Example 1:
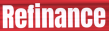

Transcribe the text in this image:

Refinance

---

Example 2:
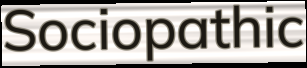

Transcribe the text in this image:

Sociopathic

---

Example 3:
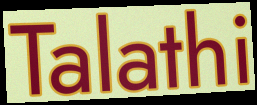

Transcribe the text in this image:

Talathi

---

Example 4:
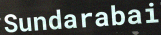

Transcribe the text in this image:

Sundarabai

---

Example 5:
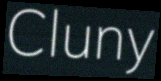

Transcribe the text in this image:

Cluny